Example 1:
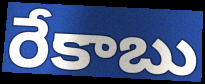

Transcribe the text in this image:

రేకాబు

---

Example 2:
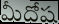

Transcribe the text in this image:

మీదోష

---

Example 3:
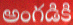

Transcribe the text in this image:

అంగడికి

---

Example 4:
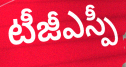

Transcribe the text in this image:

టీజీఎస్పీ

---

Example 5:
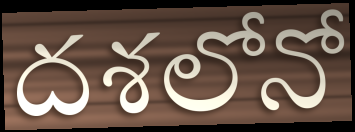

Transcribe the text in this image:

దశలోనో